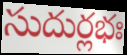
సుదుర్లభః